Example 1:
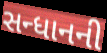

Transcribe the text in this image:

સન્ધાનની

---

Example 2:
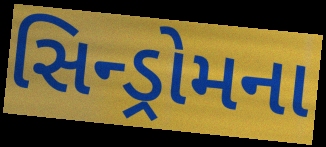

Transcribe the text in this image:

સિન્ડ્રોમના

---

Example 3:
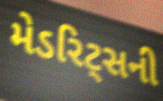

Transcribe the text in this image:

મેડરિટ્સની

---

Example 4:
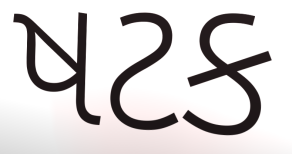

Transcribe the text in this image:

ષટક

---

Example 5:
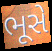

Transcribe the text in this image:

ભૂસે